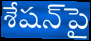
శేషన్‌పై